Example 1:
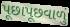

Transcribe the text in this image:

પૂછાપૂછવાળું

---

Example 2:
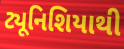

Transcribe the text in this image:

ટ્યૂનિશિયાથી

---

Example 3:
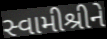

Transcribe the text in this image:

સ્વામીશ્રીને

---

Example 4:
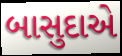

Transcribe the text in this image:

બાસુદાએ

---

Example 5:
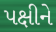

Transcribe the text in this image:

પક્ષીને